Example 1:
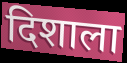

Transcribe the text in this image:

दिशाला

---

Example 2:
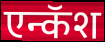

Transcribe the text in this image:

एन्कॅश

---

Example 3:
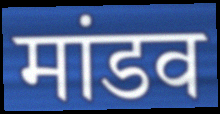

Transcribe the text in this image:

मांडव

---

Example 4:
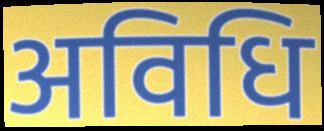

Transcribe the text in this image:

अविधि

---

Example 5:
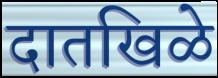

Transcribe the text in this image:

दातखिळे